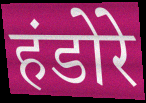
हंडोरे